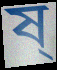
ষ্